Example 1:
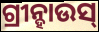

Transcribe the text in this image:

ଗ୍ରୀନ୍ହାଉସ୍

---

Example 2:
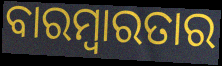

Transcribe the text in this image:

ବାରମ୍ବାରତାର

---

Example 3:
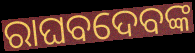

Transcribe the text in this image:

ରାଘବଦେବଙ୍କ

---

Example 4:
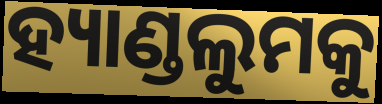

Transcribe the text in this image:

ହ୍ୟାଣ୍ଡଲୁମକୁ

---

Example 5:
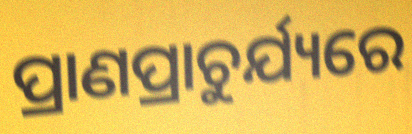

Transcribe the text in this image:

ପ୍ରାଣପ୍ରାଚୁର୍ଯ୍ୟରେ